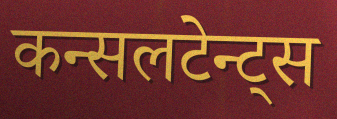
कन्सलटेन्ट्स